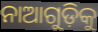
ନାଆଗୁଡ଼ିକୁ